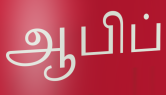
ஆபிப்